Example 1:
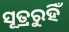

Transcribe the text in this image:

ସୂତ୍ରରୁହିଁ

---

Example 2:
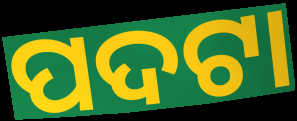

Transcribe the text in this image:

ପଦଟା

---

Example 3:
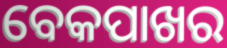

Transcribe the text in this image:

ବେକପାଖର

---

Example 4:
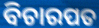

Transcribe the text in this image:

ବିଚାରପତ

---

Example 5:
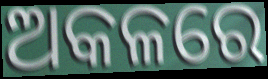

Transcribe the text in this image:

ଅକଳରେ